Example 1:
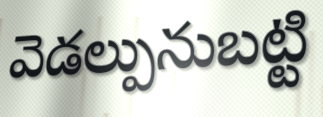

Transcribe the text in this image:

వెడల్పునుబట్టి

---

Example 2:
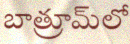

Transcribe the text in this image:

బాత్రూమ్‌లో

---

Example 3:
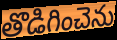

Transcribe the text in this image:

తొడిగించెను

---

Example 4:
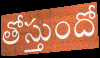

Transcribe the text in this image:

తోస్తుందో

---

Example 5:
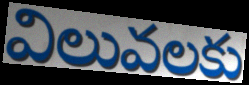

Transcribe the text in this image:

విలువలకు